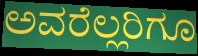
ಅವರೆಲ್ಲರಿಗೂ